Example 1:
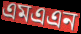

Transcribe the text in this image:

এমএএন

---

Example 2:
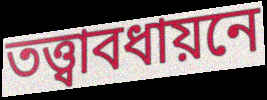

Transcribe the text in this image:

তত্ত্বাবধায়নে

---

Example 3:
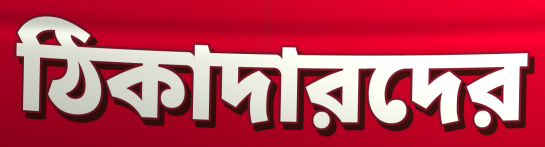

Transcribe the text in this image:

ঠিকাদারদের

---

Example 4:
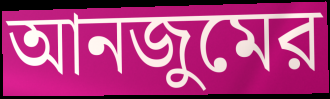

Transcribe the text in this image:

আনজুমের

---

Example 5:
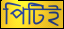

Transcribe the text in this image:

পিটিই